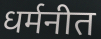
धर्मनीत